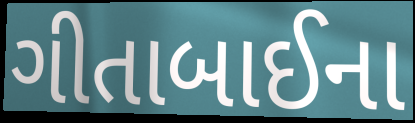
ગીતાબાઈના